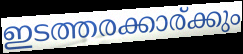
ഇടത്തരക്കാര്ക്കും